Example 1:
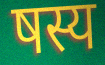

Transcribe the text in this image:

षस्य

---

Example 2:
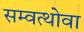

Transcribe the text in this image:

सम्वत्थोवा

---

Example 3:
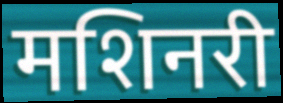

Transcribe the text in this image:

मशिनरी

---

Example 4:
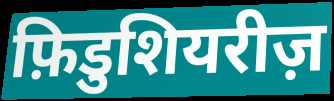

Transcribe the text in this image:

फ़िडुशियरीज़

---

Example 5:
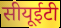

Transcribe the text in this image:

सीयूईटी